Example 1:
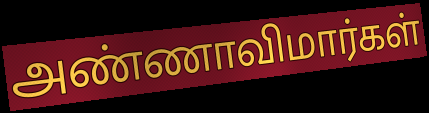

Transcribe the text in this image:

அண்ணாவிமார்கள்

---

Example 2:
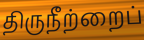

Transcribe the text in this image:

திருநீற்றைப்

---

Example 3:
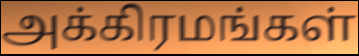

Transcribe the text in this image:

அக்கிரமங்கள்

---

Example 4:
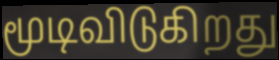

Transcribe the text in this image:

மூடிவிடுகிறது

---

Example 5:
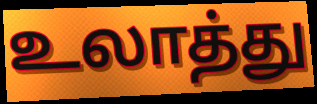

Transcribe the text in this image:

உலாத்து